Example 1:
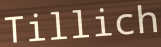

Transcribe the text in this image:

Tillich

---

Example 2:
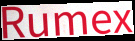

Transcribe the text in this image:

Rumex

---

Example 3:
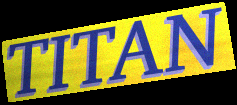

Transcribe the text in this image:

TITAN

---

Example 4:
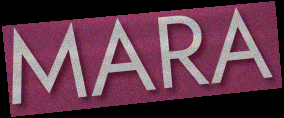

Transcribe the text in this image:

MARA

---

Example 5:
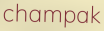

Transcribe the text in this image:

champak